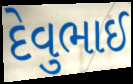
દેવુભાઈ